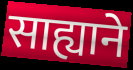
साह्याने